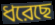
ধরেছে